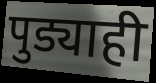
पुड्याही